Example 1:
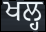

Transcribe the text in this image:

ਖਲ੍ਹ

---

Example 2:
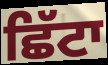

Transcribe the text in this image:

ਛਿੱਟਾ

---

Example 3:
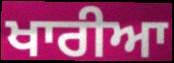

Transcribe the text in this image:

ਖਾਰੀਆ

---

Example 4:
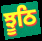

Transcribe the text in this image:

ਝੂਠਿ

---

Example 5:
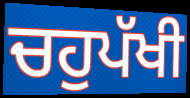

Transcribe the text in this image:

ਚਹੁਪੱਖੀ